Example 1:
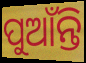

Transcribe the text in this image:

ପୁଆଁନ୍ତି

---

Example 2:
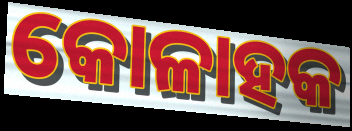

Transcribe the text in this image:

କୋଳାହକ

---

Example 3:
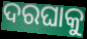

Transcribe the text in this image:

ଦରଘାକୁ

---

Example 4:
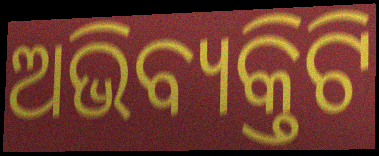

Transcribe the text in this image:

ଅଭିବ୍ୟକ୍ତିଟି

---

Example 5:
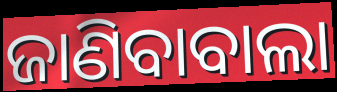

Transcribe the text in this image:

ଜାଣିବାବାଲା